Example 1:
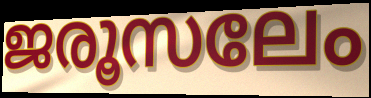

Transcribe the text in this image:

ജരൂസലേം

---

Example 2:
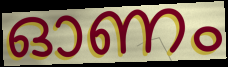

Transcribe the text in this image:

ഓണം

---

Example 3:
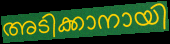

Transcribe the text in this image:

അടിക്കാനായി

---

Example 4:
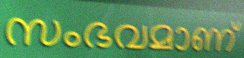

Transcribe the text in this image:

സംഭവമാണ്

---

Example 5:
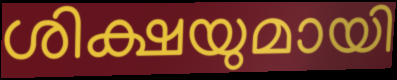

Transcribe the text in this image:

ശിക്ഷയുമായി